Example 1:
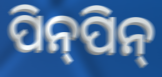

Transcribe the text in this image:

ପିନ୍‍ପିନ୍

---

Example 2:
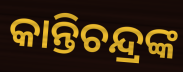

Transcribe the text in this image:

କାନ୍ତିଚନ୍ଦ୍ରଙ୍କ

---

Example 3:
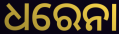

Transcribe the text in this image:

ଧରେନା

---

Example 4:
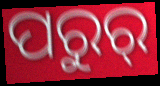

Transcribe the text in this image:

ପରୁର୍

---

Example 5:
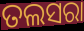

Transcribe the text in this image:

ତଲସରା